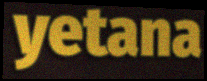
yetana